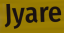
Jyare